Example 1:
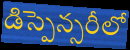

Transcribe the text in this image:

డిస్పెన్సరీలో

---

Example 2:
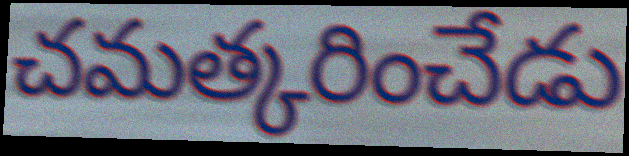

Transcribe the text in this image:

చమత్కరించేడు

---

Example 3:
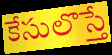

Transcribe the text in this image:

కేసులొస్తే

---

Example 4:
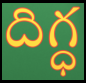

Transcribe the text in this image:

దిగ్ధ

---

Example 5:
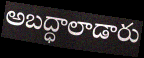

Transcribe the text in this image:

అబద్ధాలాడారు